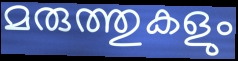
മരുത്തുകളും